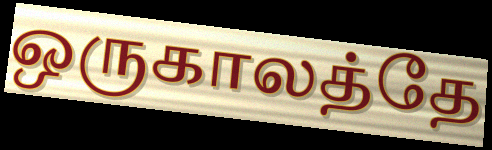
ஒருகாலத்தே